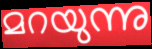
മറയുന്നു